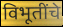
विभूतींचे